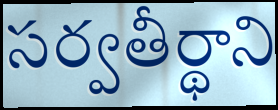
సర్వతీర్థాని